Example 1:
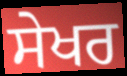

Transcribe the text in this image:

ਸੇਖਰ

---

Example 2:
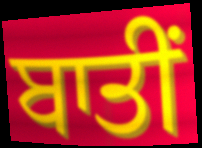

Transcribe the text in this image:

ਬਾਤੀਂ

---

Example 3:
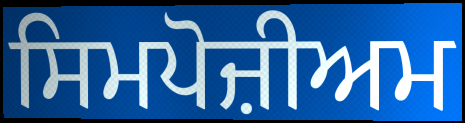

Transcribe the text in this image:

ਸਿਮਪੋਜ਼ੀਅਮ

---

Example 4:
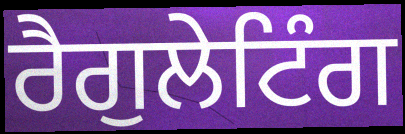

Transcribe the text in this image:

ਰੈਗੁਲੇਟਿੰਗ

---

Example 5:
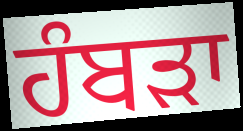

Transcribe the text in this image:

ਹੰਬਡ਼ਾ